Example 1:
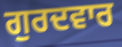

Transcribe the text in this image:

ਗੁਰਦਵਾਰ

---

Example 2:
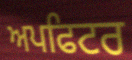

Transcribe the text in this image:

ਅਪਫਿਟਰ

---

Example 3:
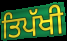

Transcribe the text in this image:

ਤਿਪੱਖੀ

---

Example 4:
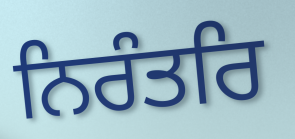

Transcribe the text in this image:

ਨਿਰੰਤਰਿ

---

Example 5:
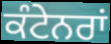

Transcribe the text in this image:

ਕੰਟੇਨਰਾਂ